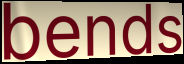
bends